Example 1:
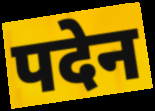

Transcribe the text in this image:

पदेन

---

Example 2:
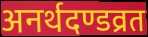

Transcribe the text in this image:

अनर्थदण्डव्रत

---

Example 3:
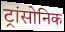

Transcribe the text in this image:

ट्रांसोनिक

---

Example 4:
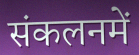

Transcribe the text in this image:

संकलनमें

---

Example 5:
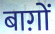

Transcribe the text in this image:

बाग़ों